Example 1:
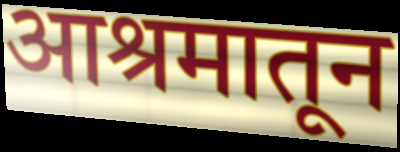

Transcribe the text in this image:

आश्रमातून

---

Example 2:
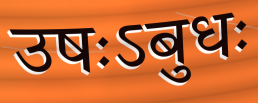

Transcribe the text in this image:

उषःऽबुधः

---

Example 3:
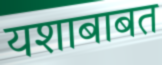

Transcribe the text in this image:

यशाबाबत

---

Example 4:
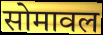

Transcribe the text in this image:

सोमावल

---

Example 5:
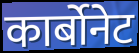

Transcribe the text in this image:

कार्बोनेट